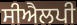
ਸੀਐਲਪੀ